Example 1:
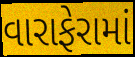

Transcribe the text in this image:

વારાફેરામાં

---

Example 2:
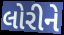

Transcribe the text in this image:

લોરીને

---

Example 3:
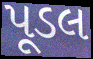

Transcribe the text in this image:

પૂડલ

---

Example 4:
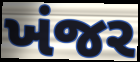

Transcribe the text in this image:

ખંજર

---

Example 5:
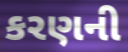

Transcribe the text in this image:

કરણની